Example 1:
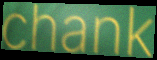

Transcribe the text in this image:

chank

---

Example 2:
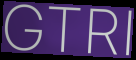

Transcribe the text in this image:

GTRI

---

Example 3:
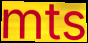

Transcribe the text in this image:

mts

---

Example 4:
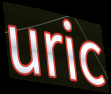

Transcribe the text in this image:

uric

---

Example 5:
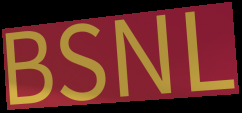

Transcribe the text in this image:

BSNL